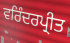
ਵਰਿੰਦਰਪ੍ਰੀਤ